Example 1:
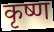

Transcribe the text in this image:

कृष्ण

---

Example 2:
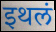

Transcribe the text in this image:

इथलं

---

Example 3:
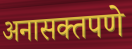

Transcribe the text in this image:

अनासक्तपणे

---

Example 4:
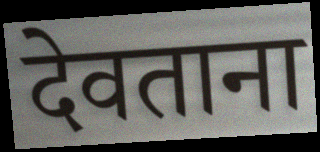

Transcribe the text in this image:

देवताना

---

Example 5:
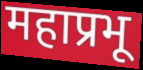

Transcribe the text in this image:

महाप्रभू